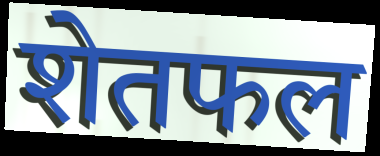
शेतफल